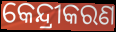
କେନ୍ଦ୍ରୀକରଣ